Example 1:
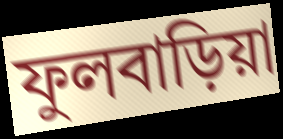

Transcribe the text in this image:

ফুলবাড়িয়া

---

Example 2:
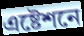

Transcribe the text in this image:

এষ্টেশনে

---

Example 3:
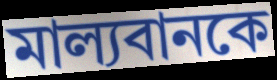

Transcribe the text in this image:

মাল্যবানকে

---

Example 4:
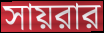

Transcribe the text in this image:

সায়রার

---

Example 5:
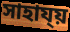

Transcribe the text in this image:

সাহায্য়